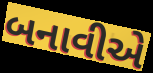
બનાવીએ